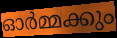
ഓർമ്മക്കും